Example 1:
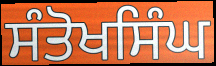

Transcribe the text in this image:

ਸੰਤੋਖਸਿੰਘ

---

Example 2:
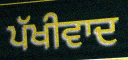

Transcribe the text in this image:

ਪੱਖੀਵਾਦ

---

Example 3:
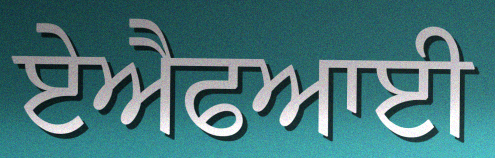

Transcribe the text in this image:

ਏਐਫਆਈ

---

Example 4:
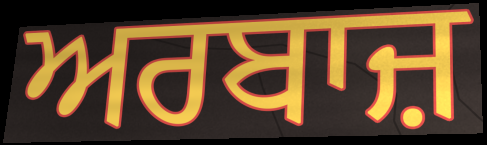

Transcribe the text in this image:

ਅਰਬਾਜ਼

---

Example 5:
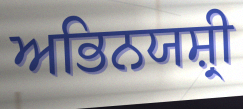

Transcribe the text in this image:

ਅਭਿਨਯਸ਼੍ਰੀ